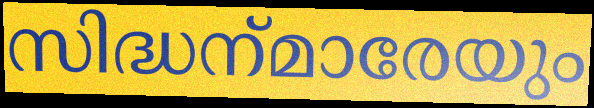
സിദ്ധന്‌മാരേയും